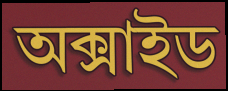
অক্সাইড